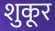
शुकूर